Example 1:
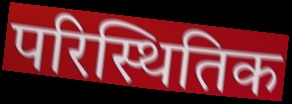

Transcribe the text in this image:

परिस्थितिक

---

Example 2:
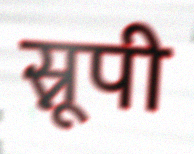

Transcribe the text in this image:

स्नूपी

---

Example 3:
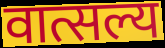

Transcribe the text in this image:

वात्सल्य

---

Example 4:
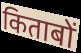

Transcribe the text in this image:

किताबों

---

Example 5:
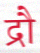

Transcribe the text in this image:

द्रौ